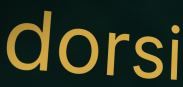
dorsi